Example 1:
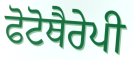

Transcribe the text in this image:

ਫੋਟੋਥੈਰੇਪੀ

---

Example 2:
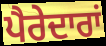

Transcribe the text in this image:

ਪੈਰੇਦਾਰਾਂ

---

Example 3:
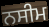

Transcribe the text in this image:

ਨਸੀਮ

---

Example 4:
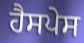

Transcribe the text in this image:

ਹੈਸਪੇਸ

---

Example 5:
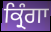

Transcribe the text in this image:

ਕ੍ਰਿੰਗਾ